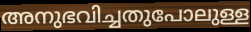
അനുഭവിച്ചതുപോലുള്ള